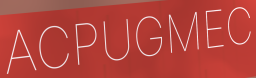
ACPUGMEC